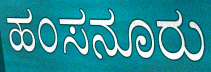
ಹಂಸನೂರು